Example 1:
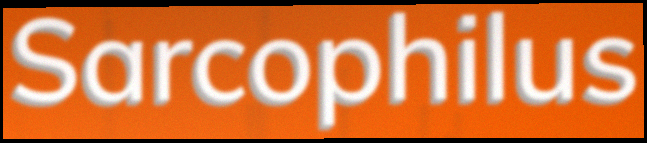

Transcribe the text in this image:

Sarcophilus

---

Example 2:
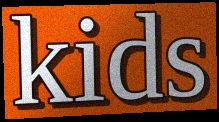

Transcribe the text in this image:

kids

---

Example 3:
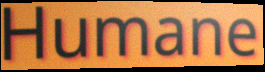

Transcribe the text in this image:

Humane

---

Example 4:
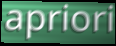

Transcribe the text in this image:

apriori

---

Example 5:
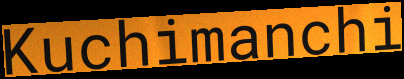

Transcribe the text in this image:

Kuchimanchi